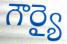
గౌర్యై